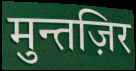
मुन्तज़िर